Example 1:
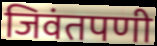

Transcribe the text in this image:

जिवंतपणी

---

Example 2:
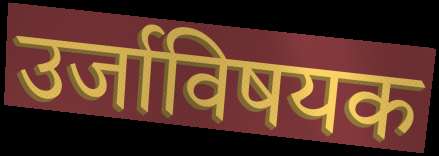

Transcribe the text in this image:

उर्जाविषयक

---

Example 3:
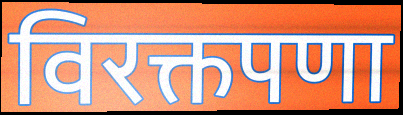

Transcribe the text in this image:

विरक्तपणा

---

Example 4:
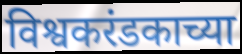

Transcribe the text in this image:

विश्वकरंडकाच्या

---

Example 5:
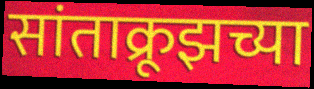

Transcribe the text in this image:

सांताक्रूझच्या